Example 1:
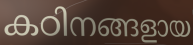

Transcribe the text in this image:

കഠിനങ്ങളായ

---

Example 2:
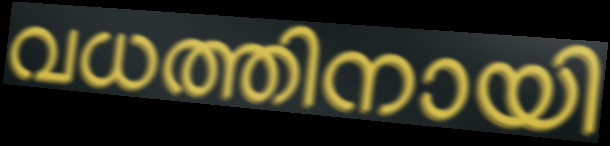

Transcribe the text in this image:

വധത്തിനായി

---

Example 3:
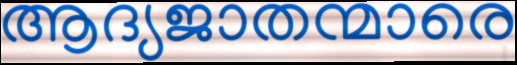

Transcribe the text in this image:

ആദ്യജാതന്മാരെ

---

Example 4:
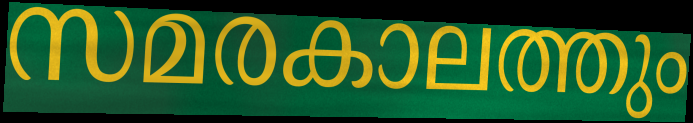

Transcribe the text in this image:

സമരകാലത്തും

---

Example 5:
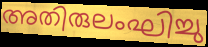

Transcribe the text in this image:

അതിരുലംഘിച്ചു